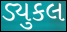
ડ્યુકલ